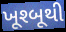
ખૂશ્બૂથી